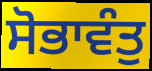
ਸੋਭਾਵੰਤੁ